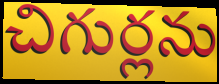
చిగుర్లను